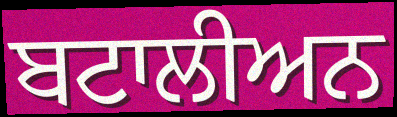
ਬਟਾਲੀਅਨ